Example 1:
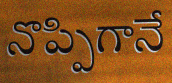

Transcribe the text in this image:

నొప్పిగానే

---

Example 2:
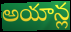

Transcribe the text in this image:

అయాన్ల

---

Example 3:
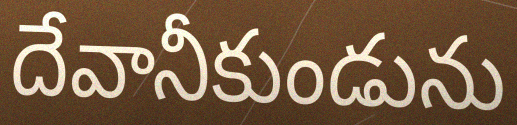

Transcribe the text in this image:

దేవానీకుండును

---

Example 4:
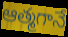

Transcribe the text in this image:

ఆత్మగానే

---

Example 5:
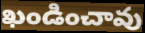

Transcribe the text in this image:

ఖండించావు